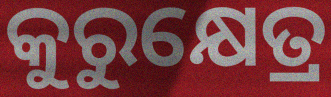
କୁରୁକ୍ଷେତ୍ର